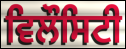
ਵਿਲੌਸਿਟੀ